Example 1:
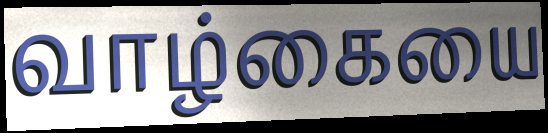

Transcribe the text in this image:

வாழ்கையை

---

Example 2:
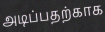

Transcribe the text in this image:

அடிப்பதற்காக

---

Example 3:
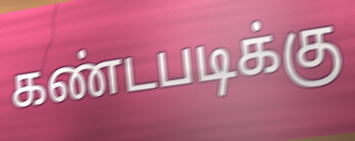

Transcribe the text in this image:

கண்டபடிக்கு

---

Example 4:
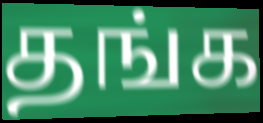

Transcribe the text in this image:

தங்க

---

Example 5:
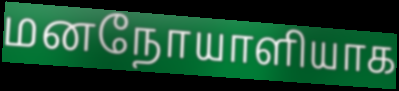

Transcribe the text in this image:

மனநோயாளியாக